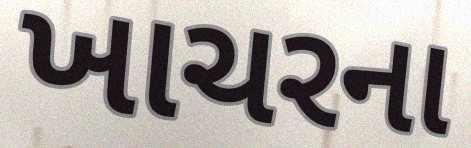
ખાચરના